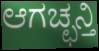
ಆಗಚ್ಛನ್ತಿ